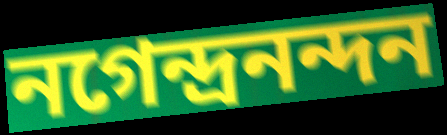
নগেন্দ্রনন্দন